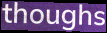
thoughs